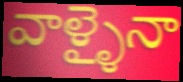
వాళ్ళైనా